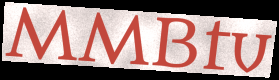
MMBtu